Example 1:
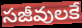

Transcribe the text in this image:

సజీవులకే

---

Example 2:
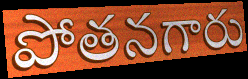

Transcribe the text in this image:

పోతనగారు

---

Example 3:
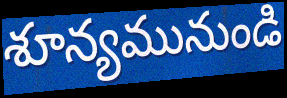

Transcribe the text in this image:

శూన్యమునుండి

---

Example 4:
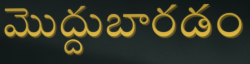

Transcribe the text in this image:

మొద్దుబారడం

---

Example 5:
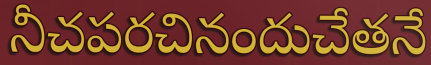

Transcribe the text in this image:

నీచపరచినందుచేతనే